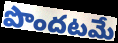
పొందటమే